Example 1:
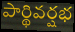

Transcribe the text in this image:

పార్థివర్షభ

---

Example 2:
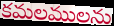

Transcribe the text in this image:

కమలములను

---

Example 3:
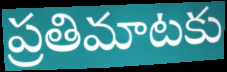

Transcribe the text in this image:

ప్రతిమాటకు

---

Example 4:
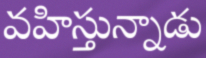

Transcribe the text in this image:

వహిస్తున్నాడు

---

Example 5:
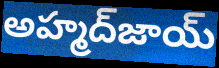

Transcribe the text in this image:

అహ్మద్‌జాయ్